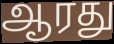
ஆரது